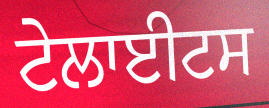
ਟੇਲਾਈਟਸ